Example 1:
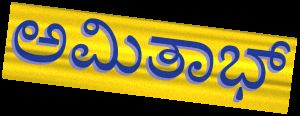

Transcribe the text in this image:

ಅಮಿತಾಭ್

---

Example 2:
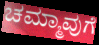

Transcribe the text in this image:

ಚಮ್ಮಾವುಗೆ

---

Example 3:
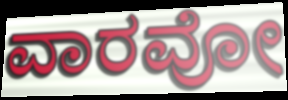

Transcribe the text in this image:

ವಾರವೋ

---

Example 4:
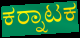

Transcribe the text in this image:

ಕರ‍್ನಾಟಕ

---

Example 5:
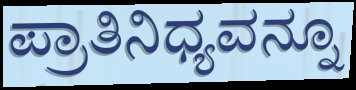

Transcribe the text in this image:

ಪ್ರಾತಿನಿಧ್ಯವನ್ನೂ